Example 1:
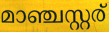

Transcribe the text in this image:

മാഞ്ചസ്റ്റര്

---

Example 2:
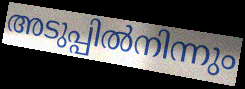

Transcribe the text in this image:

അടുപ്പിൽനിന്നും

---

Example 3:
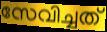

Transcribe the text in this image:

സേവിച്ചത്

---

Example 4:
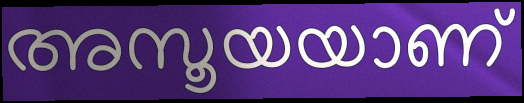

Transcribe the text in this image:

അസൂയയാണ്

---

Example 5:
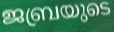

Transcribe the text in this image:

ജബ്രയുടെ